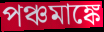
পঞ্চমাঙ্কে